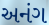
અનંગ